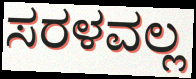
ಸರಳವಲ್ಲ